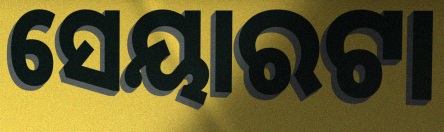
ସେୟାରଟା